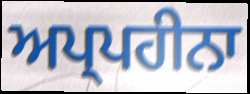
ਅਪ੍ਪਹੀਨਾ